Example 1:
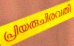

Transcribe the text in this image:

പ്രിയരുചിരവതി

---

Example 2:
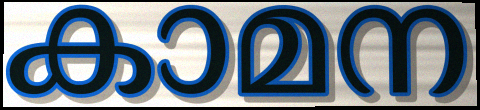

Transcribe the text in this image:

കാമന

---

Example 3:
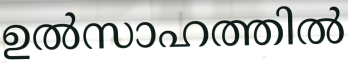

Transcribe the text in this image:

ഉൽസാഹത്തിൽ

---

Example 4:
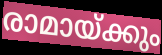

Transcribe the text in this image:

രാമായ്ക്കും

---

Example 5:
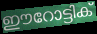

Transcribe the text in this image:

ഈറോട്ടിക്